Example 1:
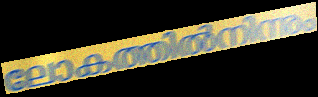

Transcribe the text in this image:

ലോകത്തിൽനിന്നും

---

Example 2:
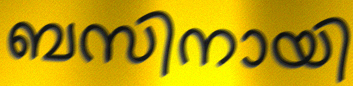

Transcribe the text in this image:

ബസിനായി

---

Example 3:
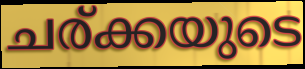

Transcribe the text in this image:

ചര്ക്കയുടെ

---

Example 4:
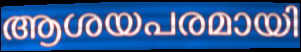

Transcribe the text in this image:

ആശയപരമായി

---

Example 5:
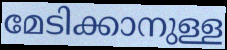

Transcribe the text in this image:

മേടിക്കാനുള്ള